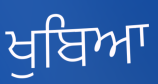
ਖੁਬਿਆ